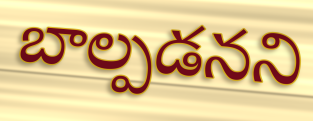
బాల్పడనని